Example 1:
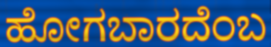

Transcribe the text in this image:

ಹೋಗಬಾರದೆಂಬ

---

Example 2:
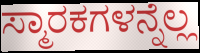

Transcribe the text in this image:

ಸ್ಮಾರಕಗಳನ್ನೆಲ್ಲ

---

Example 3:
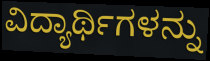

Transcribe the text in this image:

ವಿದ್ಯಾರ್ಥಿಗಳನ್ನು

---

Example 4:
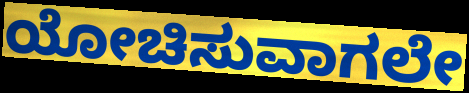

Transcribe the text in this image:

ಯೋಚಿಸುವಾಗಲೇ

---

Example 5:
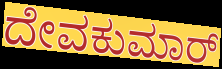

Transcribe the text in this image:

ದೇವಕುಮಾರ್